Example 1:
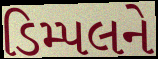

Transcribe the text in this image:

ડિમ્પલને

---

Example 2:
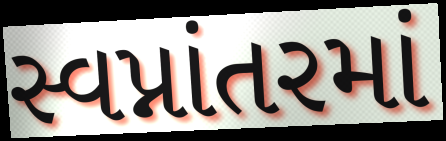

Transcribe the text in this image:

સ્વપ્નાંતરમાં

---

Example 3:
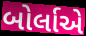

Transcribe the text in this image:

બોર્લાએ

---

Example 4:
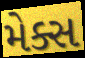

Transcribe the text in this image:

મેક્સ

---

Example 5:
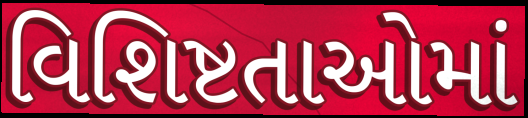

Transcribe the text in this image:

વિશિષ્ટતાઓમાં